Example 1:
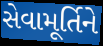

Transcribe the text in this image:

સેવામૂર્તિને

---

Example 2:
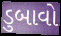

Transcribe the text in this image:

ડુબાવો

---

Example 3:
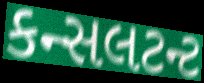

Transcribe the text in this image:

કન્સલટન્ટ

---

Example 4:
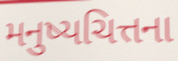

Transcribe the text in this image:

મનુષ્યચિત્તના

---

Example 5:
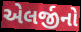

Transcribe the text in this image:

એલર્જીનો